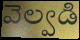
వెల్వడి